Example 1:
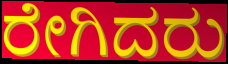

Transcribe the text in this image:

ರೇಗಿದರು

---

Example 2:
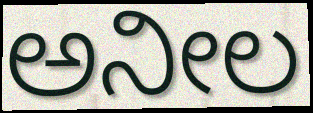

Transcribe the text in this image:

ಅನೀಲ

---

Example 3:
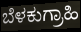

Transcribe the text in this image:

ಬೆಳಕುಗ್ರಾಹಿ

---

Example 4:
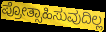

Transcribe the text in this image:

ಪ್ರೋತ್ಸಾಹಿಸುವುದಿಲ್ಲ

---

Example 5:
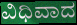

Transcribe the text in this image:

ವಿಧಿವಾದ